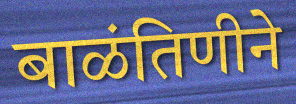
बाळंतिणीने